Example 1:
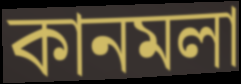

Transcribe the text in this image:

কানমলা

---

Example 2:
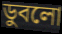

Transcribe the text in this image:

ডুবলো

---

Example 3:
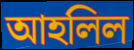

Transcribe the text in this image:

আহলিল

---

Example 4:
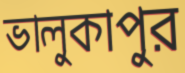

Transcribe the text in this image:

ভালুকাপুর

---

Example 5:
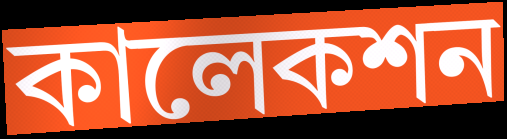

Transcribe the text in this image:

কালেকশন